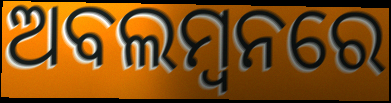
ଅବଲମ୍ବନରେ